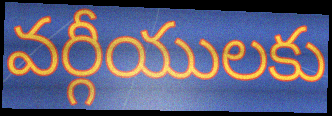
వర్గీయులకు